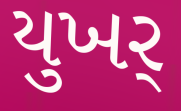
યુખર્